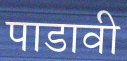
पाडावी